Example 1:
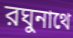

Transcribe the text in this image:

রঘুনাথে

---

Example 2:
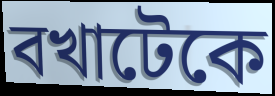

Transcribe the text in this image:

বখাটেকে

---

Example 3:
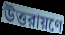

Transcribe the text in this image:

উত্তরায়ণে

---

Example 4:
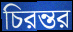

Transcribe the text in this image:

চিরন্তর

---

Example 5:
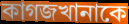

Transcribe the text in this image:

কাগজখানাকে